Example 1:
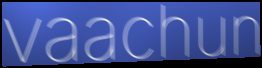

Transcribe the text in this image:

vaachun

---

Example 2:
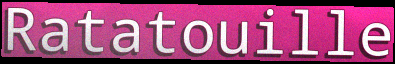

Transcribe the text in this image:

Ratatouille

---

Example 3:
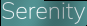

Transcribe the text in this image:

Serenity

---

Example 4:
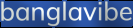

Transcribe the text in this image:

banglavibe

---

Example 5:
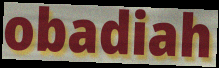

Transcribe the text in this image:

obadiah